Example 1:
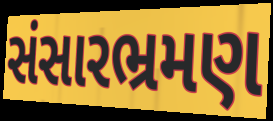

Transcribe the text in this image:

સંસારભ્રમણ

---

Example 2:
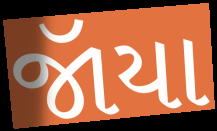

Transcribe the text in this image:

જૉયા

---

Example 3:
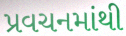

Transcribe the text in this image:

પ્રવચનમાંથી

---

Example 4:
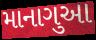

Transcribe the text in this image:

માનાગુઆ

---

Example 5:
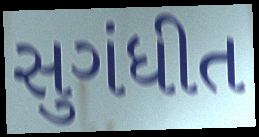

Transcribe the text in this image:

સુગંધીત